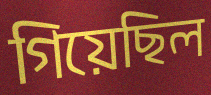
গিয়েছিল